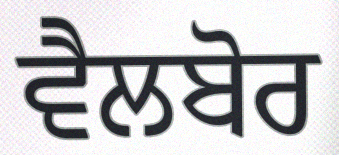
ਵੈਲਬੋਰ